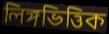
লিঙ্গভিত্তিক